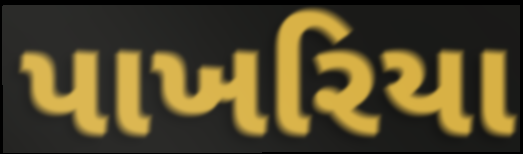
પાખરિયા